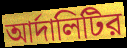
আর্দালিটির